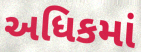
અધિકમાં